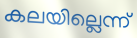
കലയില്ലെന്ന്